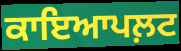
ਕਾਇਆਪਲ਼ਟ